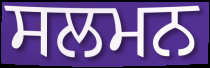
ਸਲਮਨ